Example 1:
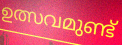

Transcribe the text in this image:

ഉത്സവമുണ്ട്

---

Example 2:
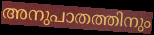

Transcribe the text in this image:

അനുപാതത്തിനും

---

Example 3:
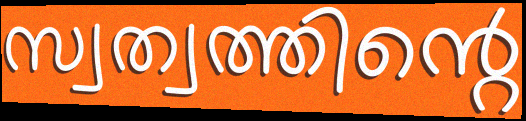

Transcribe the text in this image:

സ്വത്വത്തിന്റെ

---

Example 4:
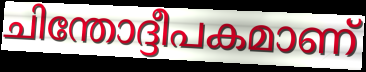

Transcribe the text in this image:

ചിന്തോദ്ദീപകമാണ്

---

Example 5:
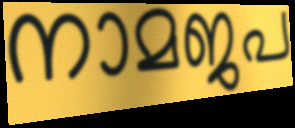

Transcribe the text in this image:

നാമജപ